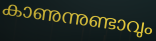
കാണുന്നുണ്ടാവും